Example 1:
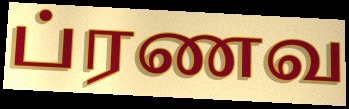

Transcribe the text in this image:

ப்ரணவ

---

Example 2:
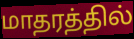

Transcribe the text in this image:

மாதரத்தில்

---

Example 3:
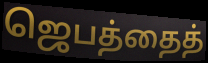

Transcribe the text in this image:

ஜெபத்தைத்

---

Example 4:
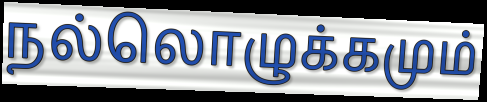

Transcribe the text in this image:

நல்லொழுக்கமும்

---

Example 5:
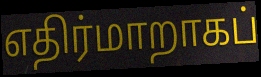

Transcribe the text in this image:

எதிர்மாறாகப்